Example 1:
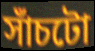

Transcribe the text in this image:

সাঁচটো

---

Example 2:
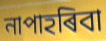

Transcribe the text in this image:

নাপাহৰিবা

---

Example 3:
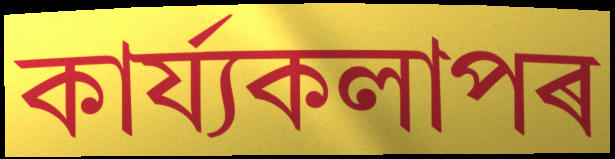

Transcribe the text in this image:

কাৰ্য্যকলাপৰ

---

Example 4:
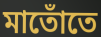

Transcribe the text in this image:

মাতোঁতে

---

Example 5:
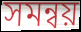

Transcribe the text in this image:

সমন্বয়